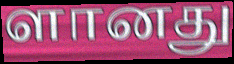
ளானது